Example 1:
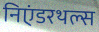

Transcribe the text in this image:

निएंडरथल्स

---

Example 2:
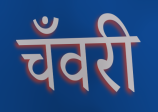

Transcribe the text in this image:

चँवरी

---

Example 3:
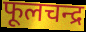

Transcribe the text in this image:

फूलचन्द्र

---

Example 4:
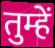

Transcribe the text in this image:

तुम्हें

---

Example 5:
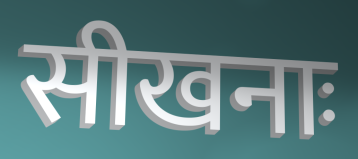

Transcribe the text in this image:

सीखनाः